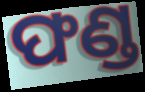
ଫଣ୍ଡ